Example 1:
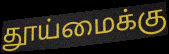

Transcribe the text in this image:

தூய்மைக்கு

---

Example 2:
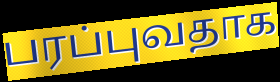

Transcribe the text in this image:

பரப்புவதாக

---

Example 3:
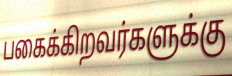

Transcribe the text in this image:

பகைக்கிறவர்களுக்கு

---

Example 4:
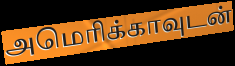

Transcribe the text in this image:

அமெரிக்காவுடன்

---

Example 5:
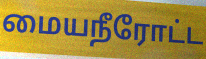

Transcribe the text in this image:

மையநீரோட்ட